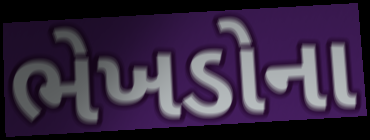
ભેખડોના